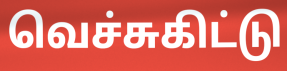
வெச்சுகிட்டு